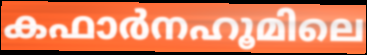
കഫാർനഹൂമിലെ